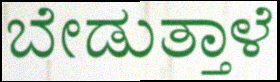
ಬೇಡುತ್ತಾಳೆ